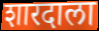
शारदाला